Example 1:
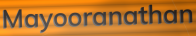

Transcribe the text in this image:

Mayooranathan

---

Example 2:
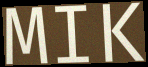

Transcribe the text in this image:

MIK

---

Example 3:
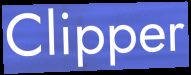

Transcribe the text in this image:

Clipper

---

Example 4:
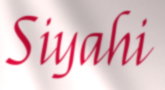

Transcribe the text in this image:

Siyahi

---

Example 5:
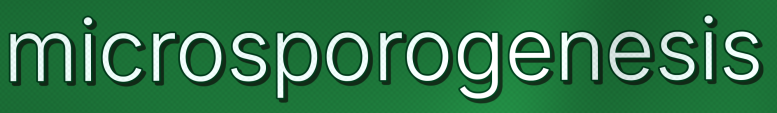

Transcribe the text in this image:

microsporogenesis